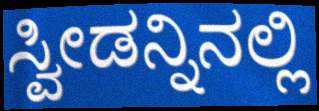
ಸ್ವೀಡನ್ನಿನಲ್ಲಿ